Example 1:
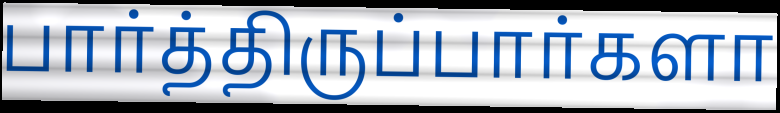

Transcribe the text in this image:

பார்த்திருப்பார்களா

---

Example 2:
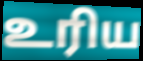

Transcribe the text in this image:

உரிய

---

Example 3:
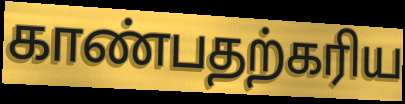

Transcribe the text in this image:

காண்பதற்கரிய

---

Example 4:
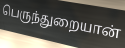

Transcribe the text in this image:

பெருந்துறையான்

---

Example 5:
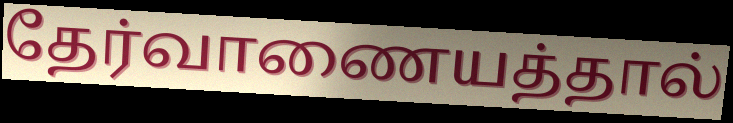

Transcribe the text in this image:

தேர்வாணையத்தால்